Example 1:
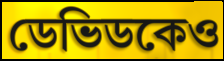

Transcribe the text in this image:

ডেভিডকেও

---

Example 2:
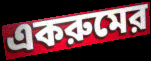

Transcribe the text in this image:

একরুমের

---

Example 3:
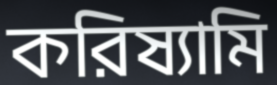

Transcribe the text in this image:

করিষ্যামি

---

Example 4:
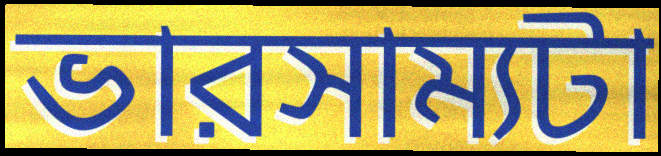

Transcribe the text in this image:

ভারসাম্যটা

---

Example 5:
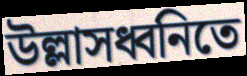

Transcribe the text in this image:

উল্লাসধ্বনিতে